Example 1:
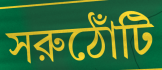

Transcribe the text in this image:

সরুঠোঁটি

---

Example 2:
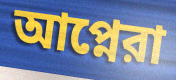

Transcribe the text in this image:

আপ্নেরা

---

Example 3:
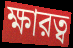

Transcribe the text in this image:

ক্ষারত্ব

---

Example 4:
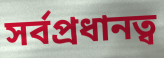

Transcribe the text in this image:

সর্বপ্রধানত্ব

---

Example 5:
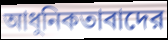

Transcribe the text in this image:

আধুনিকতাবাদের